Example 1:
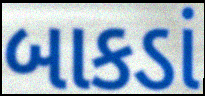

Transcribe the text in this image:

બાકડાં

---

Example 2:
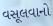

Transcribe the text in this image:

વસૂલવાનો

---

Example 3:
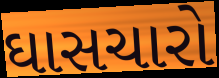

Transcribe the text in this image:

ઘાસચારો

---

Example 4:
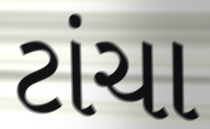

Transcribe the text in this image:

ટાંચા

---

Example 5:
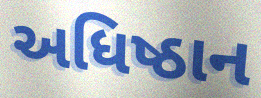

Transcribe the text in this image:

અધિષ્ઠાન